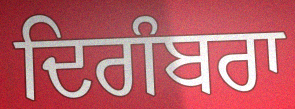
ਦਿਗੰਬਰਾ